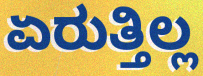
ಏರುತ್ತಿಲ್ಲ